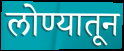
लोण्यातून